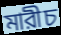
মারীচ